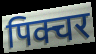
पिक्चर